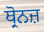
ਥ੍ਰੋਨਜ਼